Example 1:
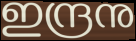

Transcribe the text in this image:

ഇന്ദ്രനു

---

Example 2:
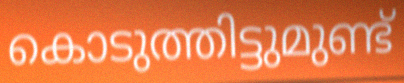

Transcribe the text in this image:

കൊടുത്തിട്ടുമുണ്ട്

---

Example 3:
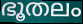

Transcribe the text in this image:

ഭൂതലം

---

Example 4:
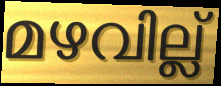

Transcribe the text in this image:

മഴവില്ല്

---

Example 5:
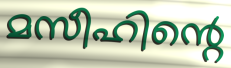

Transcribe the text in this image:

മസീഹിന്റെ